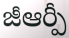
జీఆర్పీ